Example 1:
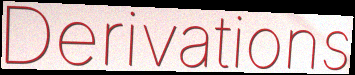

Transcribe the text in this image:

Derivations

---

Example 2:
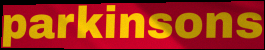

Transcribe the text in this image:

parkinsons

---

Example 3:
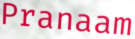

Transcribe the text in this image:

Pranaam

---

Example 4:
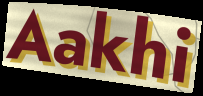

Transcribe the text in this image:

Aakhi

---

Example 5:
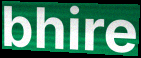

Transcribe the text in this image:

bhire